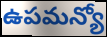
ఉపమన్యో